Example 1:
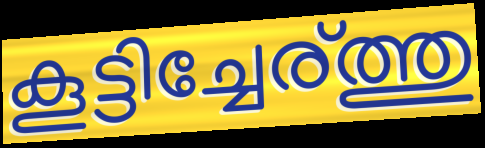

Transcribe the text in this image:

കൂട്ടിച്ചേര്ത്തു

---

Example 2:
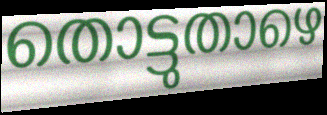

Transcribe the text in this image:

തൊട്ടുതാഴെ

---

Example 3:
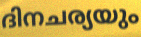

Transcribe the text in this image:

ദിനചര്യയും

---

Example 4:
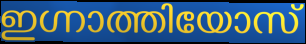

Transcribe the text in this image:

ഇഗ്നാത്തിയോസ്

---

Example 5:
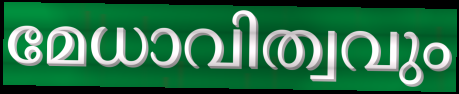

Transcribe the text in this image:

മേധാവിത്വവും